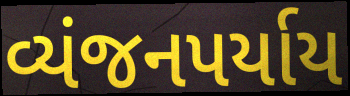
વ્યંજનપર્યાય